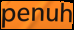
penuh